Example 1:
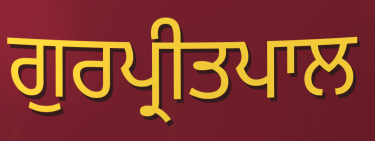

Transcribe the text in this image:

ਗੁਰਪ੍ਰੀਤਪਾਲ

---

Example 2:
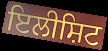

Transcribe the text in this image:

ਇਲੀਸ਼ਿਟ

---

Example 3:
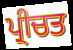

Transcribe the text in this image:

ਪ੍ਰੀਚਤ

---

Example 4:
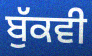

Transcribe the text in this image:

ਬੁੱਕਵੀ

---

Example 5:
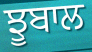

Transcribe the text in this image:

ਝੂਬਾਲ